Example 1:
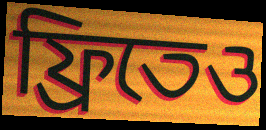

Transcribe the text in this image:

ফ্রিতেও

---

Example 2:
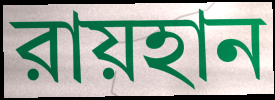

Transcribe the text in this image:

রায়হান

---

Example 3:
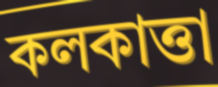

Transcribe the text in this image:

কলকাত্তা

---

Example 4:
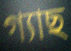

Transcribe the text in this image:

গ্যাছ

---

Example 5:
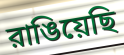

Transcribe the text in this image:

রাঙিয়েছি